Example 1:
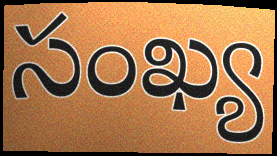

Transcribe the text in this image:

సంఖ్య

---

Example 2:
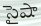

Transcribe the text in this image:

సైషా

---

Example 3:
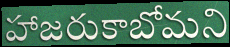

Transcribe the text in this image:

హాజరుకాబోమని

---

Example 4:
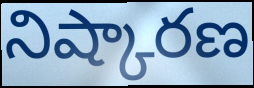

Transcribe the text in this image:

నిష్కారణ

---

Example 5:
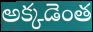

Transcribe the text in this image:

అక్కడెంత